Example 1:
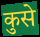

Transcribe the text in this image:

कुसे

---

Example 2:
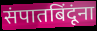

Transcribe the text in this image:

संपातबिंदूंना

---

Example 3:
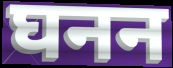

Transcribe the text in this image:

घनन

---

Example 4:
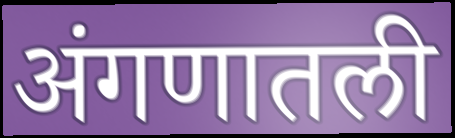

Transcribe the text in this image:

अंगणातली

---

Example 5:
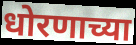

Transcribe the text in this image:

धोरणाच्या